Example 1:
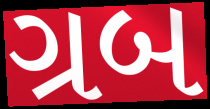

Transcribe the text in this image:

ગ્રબ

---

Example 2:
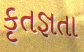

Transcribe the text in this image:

કૃતજ્ઞતા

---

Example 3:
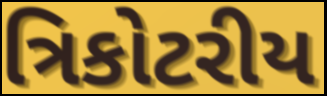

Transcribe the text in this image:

ત્રિકોટરીય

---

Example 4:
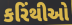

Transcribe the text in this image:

કરિંથીઓ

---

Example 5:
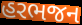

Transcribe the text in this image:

હરભજન